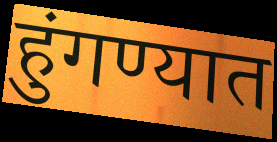
हुंगण्यात